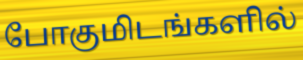
போகுமிடங்களில்